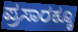
ಪ್ರಸಾರಕ್ಕೂ